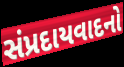
સંપ્રદાયવાદનો